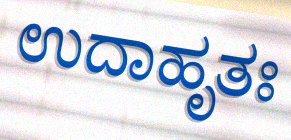
ಉದಾಹೃತಃ